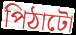
পিঠাটো